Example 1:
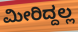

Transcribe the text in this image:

ಮೀರಿದ್ದಲ್ಲ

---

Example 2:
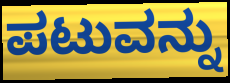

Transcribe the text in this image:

ಪಟುವನ್ನು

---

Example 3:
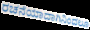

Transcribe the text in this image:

ರಚನೆಯಾದಾಗಿನಿಂದಲೂ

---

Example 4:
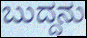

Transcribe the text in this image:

ಬುದ್ದನು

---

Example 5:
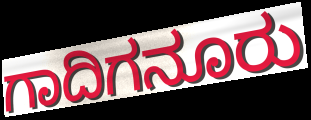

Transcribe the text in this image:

ಗಾದಿಗನೂರು